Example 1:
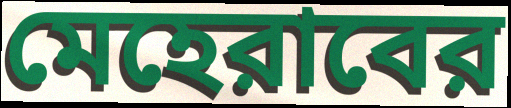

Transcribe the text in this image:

মেহেরাবের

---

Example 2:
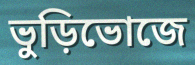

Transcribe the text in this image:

ভুড়িভোজে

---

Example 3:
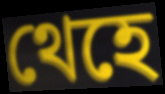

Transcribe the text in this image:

থেহে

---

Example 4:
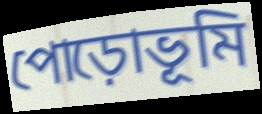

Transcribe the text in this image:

পোড়োভূমি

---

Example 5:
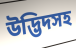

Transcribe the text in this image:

উদ্ভিদসহ